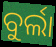
ବୁର୍ଲା